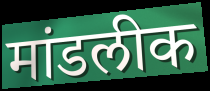
मांडलीक